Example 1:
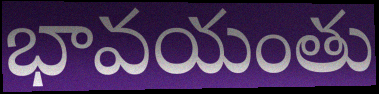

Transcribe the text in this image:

భావయంతు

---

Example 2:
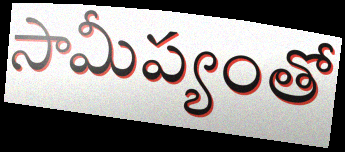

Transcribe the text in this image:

సామీప్యంతో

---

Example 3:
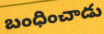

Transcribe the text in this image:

బంధించాడు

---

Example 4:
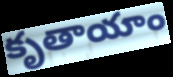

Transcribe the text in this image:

కృతాయాం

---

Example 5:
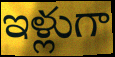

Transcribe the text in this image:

ఇళ్లుగా